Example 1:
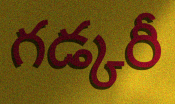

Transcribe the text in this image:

గడ్కరీ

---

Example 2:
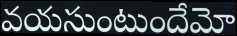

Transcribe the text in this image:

వయసుంటుందేమో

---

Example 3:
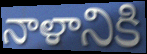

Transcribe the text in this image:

నాళానికి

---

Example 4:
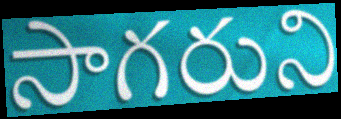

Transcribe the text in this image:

సాగరుని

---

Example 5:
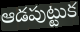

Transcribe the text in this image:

ఆడపుట్టుక